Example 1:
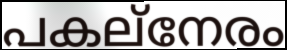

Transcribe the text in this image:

പകല്നേരം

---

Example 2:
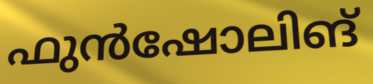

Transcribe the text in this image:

ഫുൻഷോലിങ്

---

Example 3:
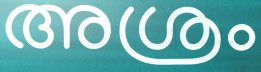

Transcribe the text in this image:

അശ്രം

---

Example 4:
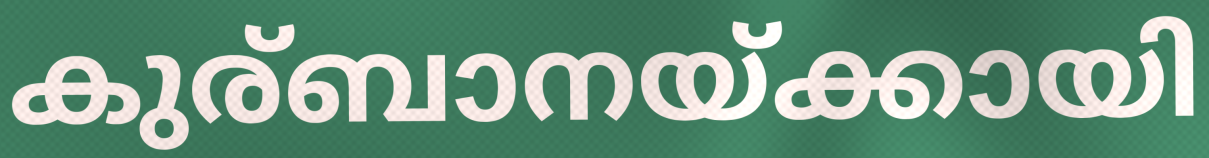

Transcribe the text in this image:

കുര്ബാനയ്ക്കായി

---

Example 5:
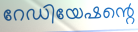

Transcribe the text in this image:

റേഡിയേഷന്റെ